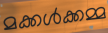
മക്കൾക്കമ്മ